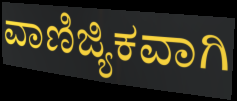
ವಾಣಿಜ್ಯಿಕವಾಗಿ